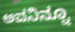
ಅವನಿನ್ನೂ